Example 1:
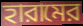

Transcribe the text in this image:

হারামের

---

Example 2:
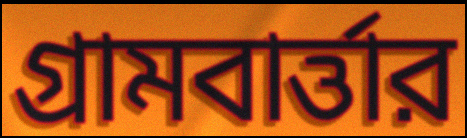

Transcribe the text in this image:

গ্রামবার্ত্তার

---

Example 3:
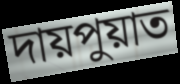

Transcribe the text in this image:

দায়পুয়াত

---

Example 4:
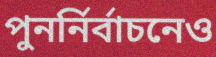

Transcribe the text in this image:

পুনর্নির্বাচনেও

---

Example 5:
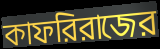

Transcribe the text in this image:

কাফরিরাজের